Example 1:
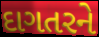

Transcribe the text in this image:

દાગતરને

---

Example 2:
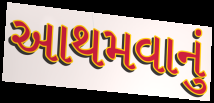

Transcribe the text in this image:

આથમવાનું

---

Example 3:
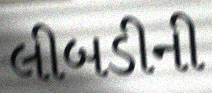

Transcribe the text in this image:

લીબડીની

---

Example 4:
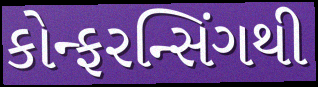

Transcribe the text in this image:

કોન્ફરન્સિંગથી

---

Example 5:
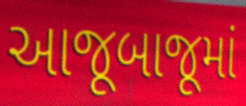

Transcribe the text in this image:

આજૂબાજૂમાં